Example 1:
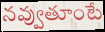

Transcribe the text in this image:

నవ్వుతూంటే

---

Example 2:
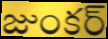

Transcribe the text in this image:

జుంకర్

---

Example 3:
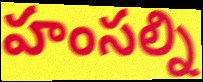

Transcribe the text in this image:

హంసల్ని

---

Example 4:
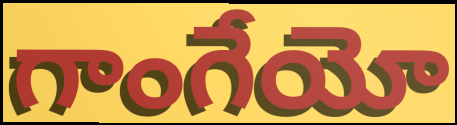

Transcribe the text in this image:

గాంగేయో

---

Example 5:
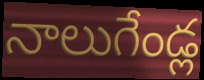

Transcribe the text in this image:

నాలుగేండ్ల